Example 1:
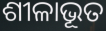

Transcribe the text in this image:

ଶୀଳାଭୂତ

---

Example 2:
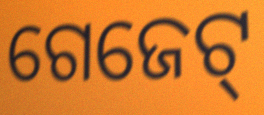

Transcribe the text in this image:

ଗେଜେଟ୍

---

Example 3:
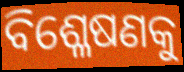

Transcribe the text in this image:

ବିଶ୍ଳେଷଣକୁ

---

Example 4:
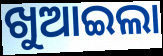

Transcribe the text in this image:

ଖୁଆଇଲା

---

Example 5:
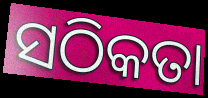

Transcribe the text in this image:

ସଠିକତା